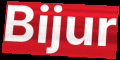
Bijur